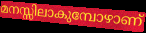
മനസ്സിലാകുമ്പോഴാണ്